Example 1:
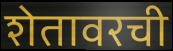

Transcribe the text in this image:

शेतावरची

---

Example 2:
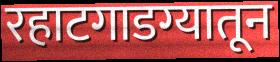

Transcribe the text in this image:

रहाटगाडग्यातून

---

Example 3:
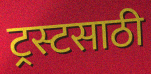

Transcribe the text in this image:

ट्रस्टसाठी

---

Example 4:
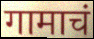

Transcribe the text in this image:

गामाचं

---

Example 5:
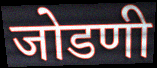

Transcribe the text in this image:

जोडणी